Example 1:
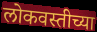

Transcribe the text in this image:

लोकवस्तीच्या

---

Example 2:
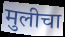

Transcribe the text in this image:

मुलीचा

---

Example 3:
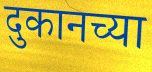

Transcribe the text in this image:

दुकानच्या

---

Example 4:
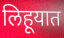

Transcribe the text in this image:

लिहूयात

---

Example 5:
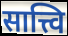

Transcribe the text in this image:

सात्त्वि